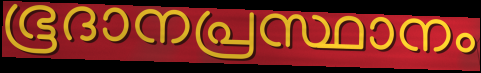
ഭൂദാനപ്രസ്ഥാനം